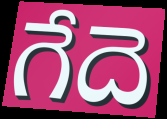
గేదె